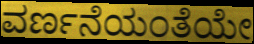
ವರ್ಣನೆಯಂತೆಯೇ